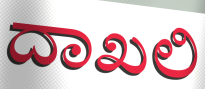
ದಾಖಲಿ